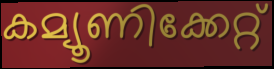
കമ്യൂണിക്കേറ്റ്